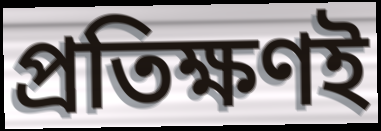
প্রতিক্ষণই